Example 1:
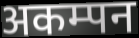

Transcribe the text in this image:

अकम्पन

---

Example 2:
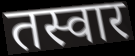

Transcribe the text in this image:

तस्वार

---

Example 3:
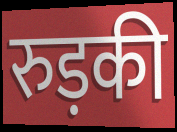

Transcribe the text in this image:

रुड़की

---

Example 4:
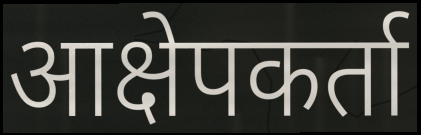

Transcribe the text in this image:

आक्षेपकर्ता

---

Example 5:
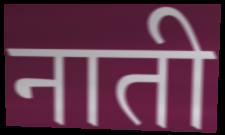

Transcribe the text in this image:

नाती